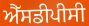
ਐੱਸਡੀਪੀਸੀ